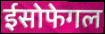
ईसोफेगल